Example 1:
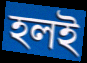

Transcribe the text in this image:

হলই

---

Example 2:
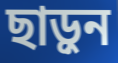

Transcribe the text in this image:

ছাড়ুন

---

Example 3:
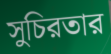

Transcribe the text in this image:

সুচিরতার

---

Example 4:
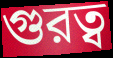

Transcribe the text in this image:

গুরত্ব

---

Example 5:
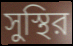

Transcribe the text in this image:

সুস্থির